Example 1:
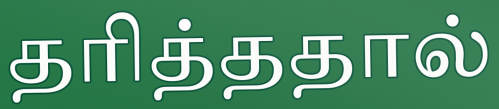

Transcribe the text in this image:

தரித்ததால்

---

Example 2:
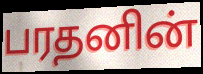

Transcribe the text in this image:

பரதனின்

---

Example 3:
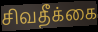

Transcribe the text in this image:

சிவதீக்கை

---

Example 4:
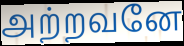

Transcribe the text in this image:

அற்றவனே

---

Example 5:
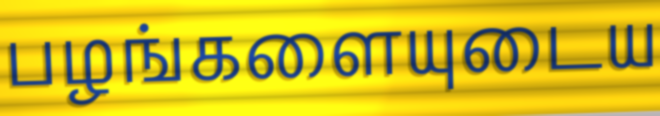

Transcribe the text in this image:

பழங்களையுடைய